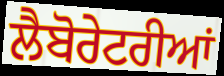
ਲੈਬੋਰੇਟਰੀਆਂ